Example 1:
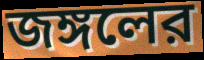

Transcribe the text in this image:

জঙ্গলের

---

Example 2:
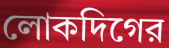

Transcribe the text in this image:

লোকদিগের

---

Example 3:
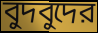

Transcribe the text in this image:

বুদবুদের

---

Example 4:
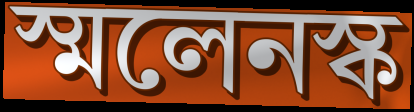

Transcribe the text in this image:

স্মলেনস্ক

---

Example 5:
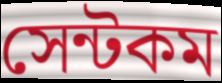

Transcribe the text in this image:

সেন্টকম